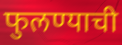
फुलण्याची